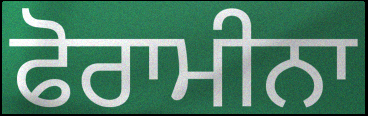
ਫੋਰਾਮੀਨਾ